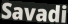
Savadi